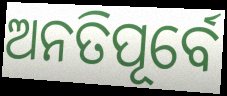
ଅନତିପୂର୍ବେ